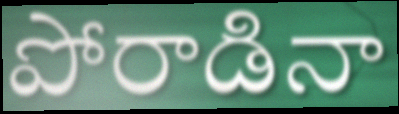
పోరాడినా